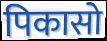
पिकासो